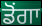
ਡੋਂਗਾ